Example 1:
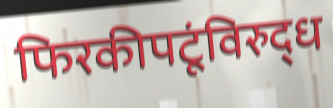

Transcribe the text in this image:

फिरकीपटूंविरुद्ध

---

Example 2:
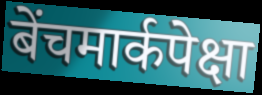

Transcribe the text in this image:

बेंचमार्कपेक्षा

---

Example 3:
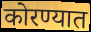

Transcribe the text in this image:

कोरण्यात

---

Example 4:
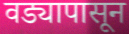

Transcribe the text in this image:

वड्यापासून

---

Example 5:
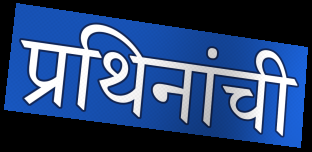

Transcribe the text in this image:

प्रथिनांची